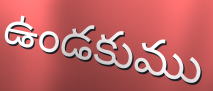
ఉండకుము